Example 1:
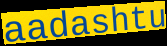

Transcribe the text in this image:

aadashtu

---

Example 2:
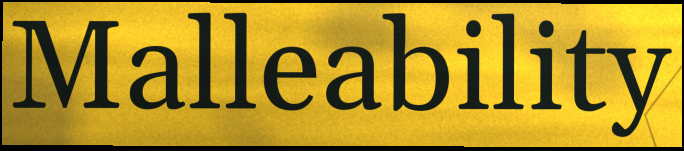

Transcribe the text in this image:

Malleability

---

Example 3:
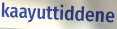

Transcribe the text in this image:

kaayuttiddene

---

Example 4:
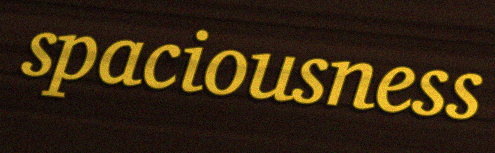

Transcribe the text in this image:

spaciousness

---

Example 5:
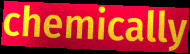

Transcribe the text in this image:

chemically